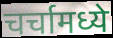
चर्चामध्ये